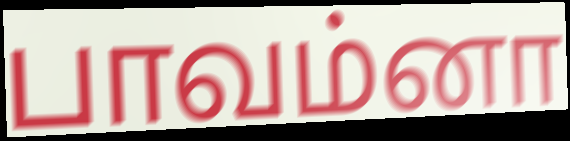
பாவம்னா